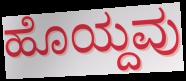
ಹೊಯ್ದವು